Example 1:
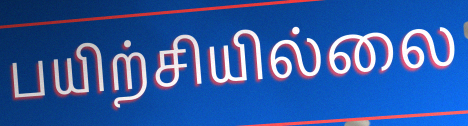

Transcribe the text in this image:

பயிற்சியில்லை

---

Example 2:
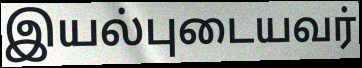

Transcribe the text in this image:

இயல்புடையவர்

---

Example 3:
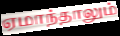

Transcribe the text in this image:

ஏமாந்தாலும்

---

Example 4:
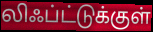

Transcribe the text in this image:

லிஃப்ட்டுக்குள்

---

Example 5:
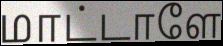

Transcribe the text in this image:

மாட்டாளே